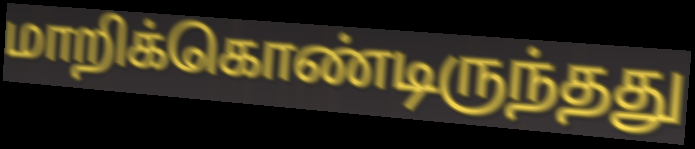
மாறிக்கொண்டிருந்தது